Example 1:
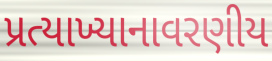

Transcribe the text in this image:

પ્રત્યાખ્યાનાવરણીય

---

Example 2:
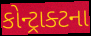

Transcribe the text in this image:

કોન્ટ્રાક્ટના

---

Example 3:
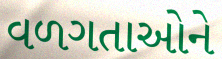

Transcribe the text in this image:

વળગતાઓને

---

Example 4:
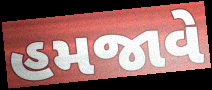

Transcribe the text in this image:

હમજાવે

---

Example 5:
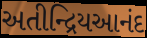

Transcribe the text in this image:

અતીન્દ્રિયઆનંદ